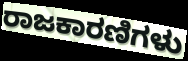
ರಾಜಕಾರಣಿಗಳು